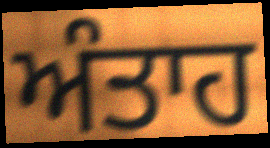
ਅੰਤਾਹ